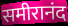
समीरानंद